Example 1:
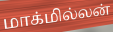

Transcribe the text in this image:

மாக்மில்லன்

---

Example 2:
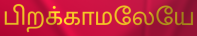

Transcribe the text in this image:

பிறக்காமலேயே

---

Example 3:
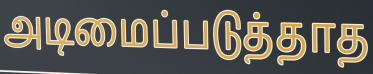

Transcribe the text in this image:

அடிமைப்படுத்தாத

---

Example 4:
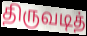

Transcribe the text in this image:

திருவடித்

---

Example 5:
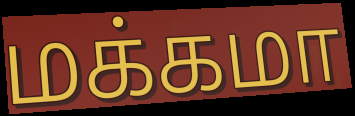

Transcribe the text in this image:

மக்கமா